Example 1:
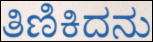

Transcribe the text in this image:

ತಿಣಿಕಿದನು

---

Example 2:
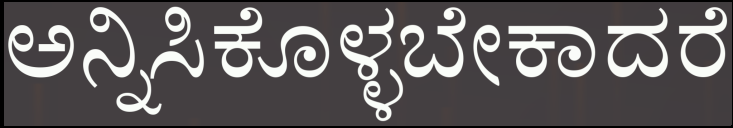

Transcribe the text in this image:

ಅನ್ನಿಸಿಕೊಳ್ಳಬೇಕಾದರೆ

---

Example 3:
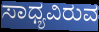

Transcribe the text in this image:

ಸಾಧ್ಯವಿರುವ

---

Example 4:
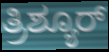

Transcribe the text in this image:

ತ್ರಿಶ್ಯೂರ್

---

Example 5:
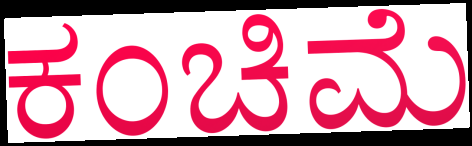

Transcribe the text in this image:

ಕಂಚಿಮೆ